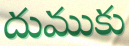
దుముకు